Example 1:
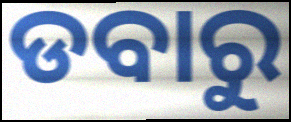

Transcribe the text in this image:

ଡବାରୁ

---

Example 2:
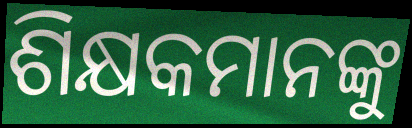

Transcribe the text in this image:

ଶିକ୍ଷକମାନଙ୍କୁ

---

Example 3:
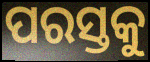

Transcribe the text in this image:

ପରସ୍ତକୁ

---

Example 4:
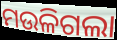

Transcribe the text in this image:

ମଉଳିଗଲା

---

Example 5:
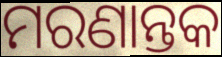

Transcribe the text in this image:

ମରଣାନ୍ତକ